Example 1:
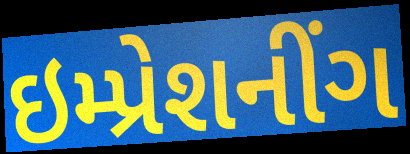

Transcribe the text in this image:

ઇમ્પ્રેશનીંગ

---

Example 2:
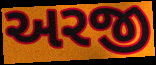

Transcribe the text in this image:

અરજી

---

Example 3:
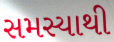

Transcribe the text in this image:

સમસ્યાથી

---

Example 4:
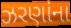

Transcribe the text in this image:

ઝરણાંના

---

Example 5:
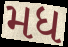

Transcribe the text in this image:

મધ